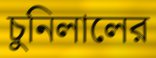
চুনিলালের